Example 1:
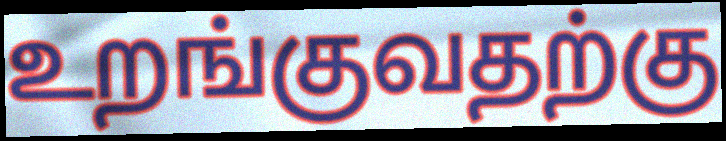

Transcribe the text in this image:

உறங்குவதற்கு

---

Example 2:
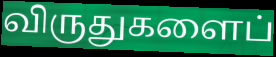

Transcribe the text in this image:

விருதுகளைப்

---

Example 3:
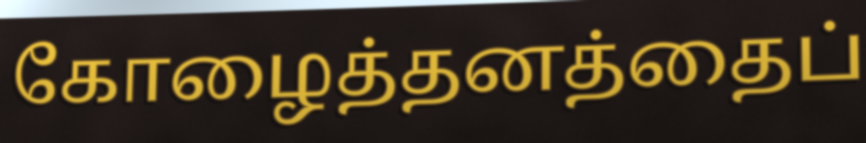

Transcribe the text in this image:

கோழைத்தனத்தைப்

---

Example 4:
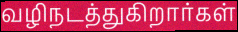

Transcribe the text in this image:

வழிநடத்துகிறார்கள்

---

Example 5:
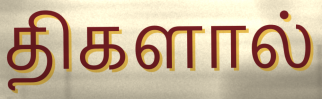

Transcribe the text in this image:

திகளால்